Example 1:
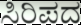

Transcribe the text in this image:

ಸಿರಿಪದ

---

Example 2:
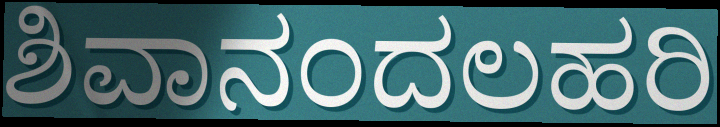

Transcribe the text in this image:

ಶಿವಾನಂದಲಹರಿ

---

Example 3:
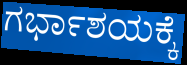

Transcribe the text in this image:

ಗರ್ಭಾಶಯಕ್ಕೆ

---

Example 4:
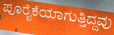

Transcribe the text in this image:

ಪೂರೈಕೆಯಾಗುತ್ತಿದ್ದವು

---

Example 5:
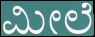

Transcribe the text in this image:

ಮೀಲೆ